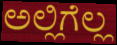
ಅಲ್ಲಿಗೆಲ್ಲ